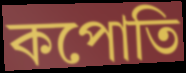
কপোতি